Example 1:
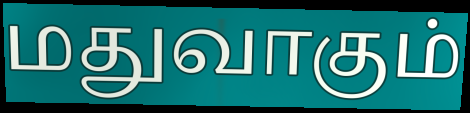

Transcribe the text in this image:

மதுவாகும்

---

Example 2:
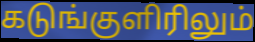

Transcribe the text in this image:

கடுங்குளிரிலும்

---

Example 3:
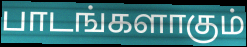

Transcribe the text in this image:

பாடங்களாகும்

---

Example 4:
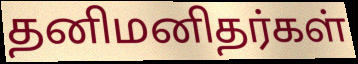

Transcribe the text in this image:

தனிமனிதர்கள்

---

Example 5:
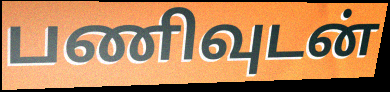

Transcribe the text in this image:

பணிவுடன்